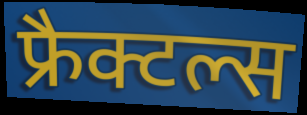
फ्रैक्टल्स